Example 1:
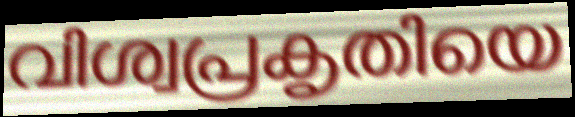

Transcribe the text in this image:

വിശ്വപ്രകൃതിയെ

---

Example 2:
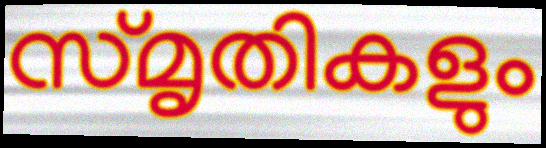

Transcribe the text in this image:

സ്മൃതികളും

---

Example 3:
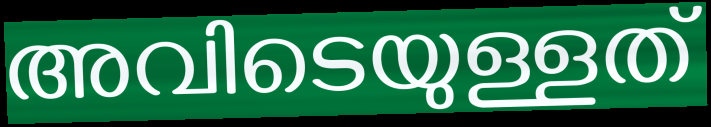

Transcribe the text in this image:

അവിടെയുള്ളത്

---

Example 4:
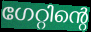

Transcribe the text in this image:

ഗേറ്റിന്റെ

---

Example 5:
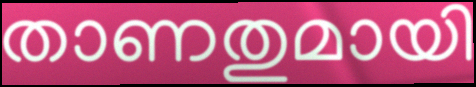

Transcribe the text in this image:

താണതുമായി